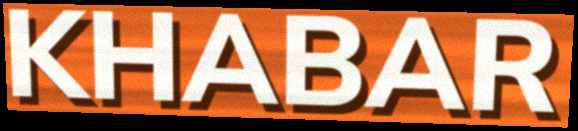
KHABAR